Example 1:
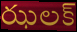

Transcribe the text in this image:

ఝలక్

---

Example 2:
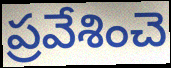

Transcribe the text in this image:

ప్రవేశించె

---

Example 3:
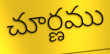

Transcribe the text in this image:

చూర్ణము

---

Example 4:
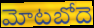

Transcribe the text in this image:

మోటబోదె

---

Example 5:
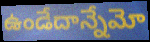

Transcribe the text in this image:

ఉండేదాన్నేమో